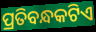
ପ୍ରତିବନ୍ଧକଟିଏ